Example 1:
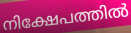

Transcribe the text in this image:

നിക്ഷേപത്തിൽ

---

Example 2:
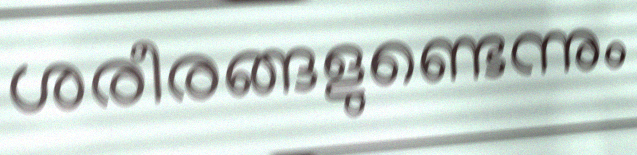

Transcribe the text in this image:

ശരീരങ്ങളുണ്ടെന്നും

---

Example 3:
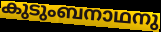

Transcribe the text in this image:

കുടുംബനാഥനു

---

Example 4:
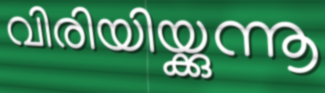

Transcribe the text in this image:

വിരിയിയ്ക്കുന്നൂ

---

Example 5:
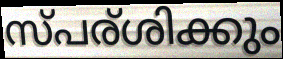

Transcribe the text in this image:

സ്പര്ശിക്കും